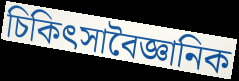
চিকিৎসাবৈজ্ঞানিক